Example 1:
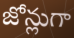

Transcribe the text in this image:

జోన్లుగా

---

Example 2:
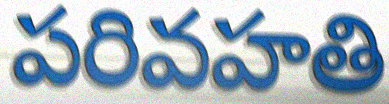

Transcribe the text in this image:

పరివహతి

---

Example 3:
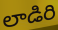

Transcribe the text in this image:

లాడిరి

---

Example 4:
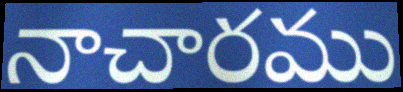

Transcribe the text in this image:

నాచారము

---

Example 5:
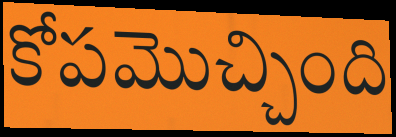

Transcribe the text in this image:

కోపమొచ్చింది